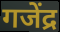
गजेंद्र